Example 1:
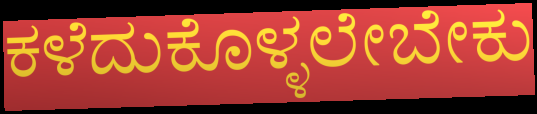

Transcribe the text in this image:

ಕಳೆದುಕೊಳ್ಳಲೇಬೇಕು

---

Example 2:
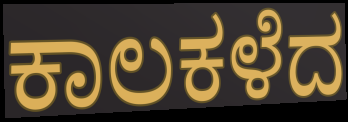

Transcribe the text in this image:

ಕಾಲಕಳೆದ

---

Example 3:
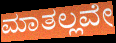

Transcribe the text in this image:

ಮಾತಲ್ಲವೇ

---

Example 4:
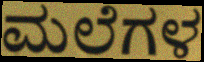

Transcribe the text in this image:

ಮಲೆಗಳ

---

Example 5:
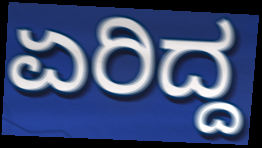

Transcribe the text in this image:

ಏರಿದ್ದ